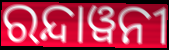
ରନ୍ଦାୱନୀ